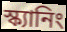
স্ক্যানিং